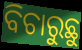
ବିଚାରୁଛୁ